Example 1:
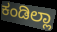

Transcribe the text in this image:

ಕಂಡಿಲ್ಲಾ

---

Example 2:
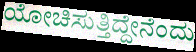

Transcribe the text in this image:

ಯೋಚಿಸುತ್ತಿದ್ದೇನೆಂದು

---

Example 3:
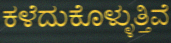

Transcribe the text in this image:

ಕಳೆದುಕೊಳ್ಳುತ್ತಿವೆ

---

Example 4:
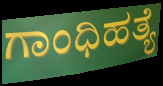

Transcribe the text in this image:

ಗಾಂಧಿಹತ್ಯೆ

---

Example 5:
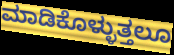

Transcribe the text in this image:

ಮಾಡಿಕೊಳ್ಳುತ್ತಲೂ